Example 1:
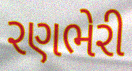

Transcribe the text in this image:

રણભેરી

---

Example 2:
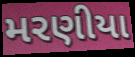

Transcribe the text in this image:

મરણીયા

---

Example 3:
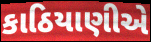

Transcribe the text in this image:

કાઠિયાણીએ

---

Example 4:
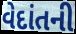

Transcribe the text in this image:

વેદાંતની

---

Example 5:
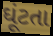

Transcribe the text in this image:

ઘૂંટતા